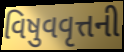
વિષુવવૃત્તની